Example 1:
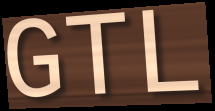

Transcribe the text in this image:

GTL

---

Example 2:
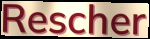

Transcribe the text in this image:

Rescher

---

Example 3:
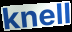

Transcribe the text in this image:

knell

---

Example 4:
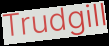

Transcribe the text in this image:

Trudgill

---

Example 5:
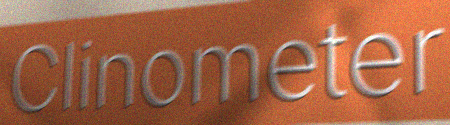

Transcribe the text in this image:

Clinometer